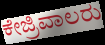
ಕೇಜ್ರಿವಾಲರು